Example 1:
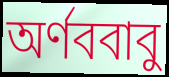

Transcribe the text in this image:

অর্ণববাবু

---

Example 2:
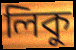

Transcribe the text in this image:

লিকু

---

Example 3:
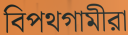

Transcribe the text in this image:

বিপথগামীরা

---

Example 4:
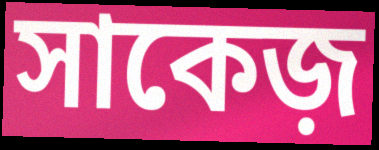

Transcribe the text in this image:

সাকেজ়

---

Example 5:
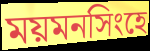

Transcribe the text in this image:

ময়মনসিংহে